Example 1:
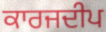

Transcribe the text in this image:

ਕਾਰਜਦੀਪ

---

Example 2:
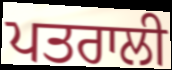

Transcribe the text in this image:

ਪਤਰਾਲੀ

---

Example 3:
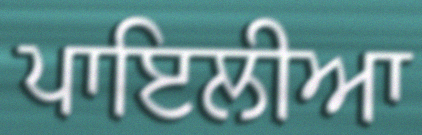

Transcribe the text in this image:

ਪਾਇਲੀਆ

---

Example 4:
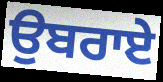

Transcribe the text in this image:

ਉਬਰਾਏ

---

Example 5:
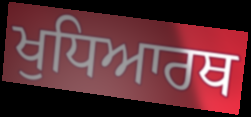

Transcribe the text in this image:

ਖੁਧਿਆਰਥ